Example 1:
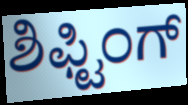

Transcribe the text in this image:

ಶಿಫ್ಟಿಂಗ್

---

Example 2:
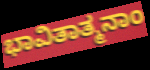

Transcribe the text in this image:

ಭಾವಿತಾತ್ಮನಾಂ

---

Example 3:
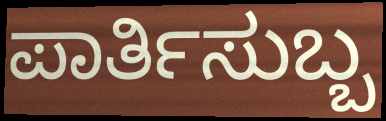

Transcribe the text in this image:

ಪಾರ್ತಿಸುಬ್ಬ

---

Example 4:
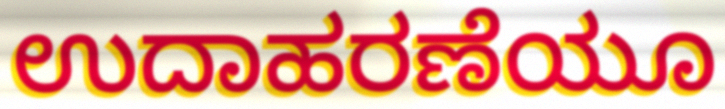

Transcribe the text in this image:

ಉದಾಹರಣೆಯೂ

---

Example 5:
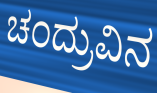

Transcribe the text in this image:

ಚಂದ್ರುವಿನ